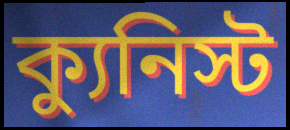
ক্যুনিস্ট